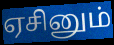
ஏசினும்